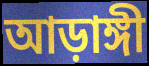
আড়াঙ্গী